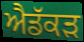
ਐਡੱਕੜ